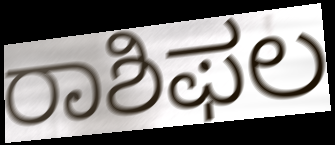
ರಾಶಿಫಲ